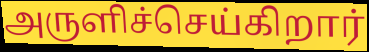
அருளிச்செய்கிறார்